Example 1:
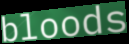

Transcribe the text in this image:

bloods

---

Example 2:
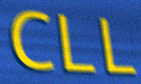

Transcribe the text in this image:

CLL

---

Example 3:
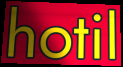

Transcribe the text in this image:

hotil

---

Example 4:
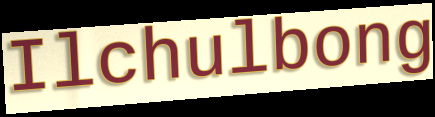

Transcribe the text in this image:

Ilchulbong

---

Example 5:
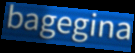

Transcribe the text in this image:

bagegina